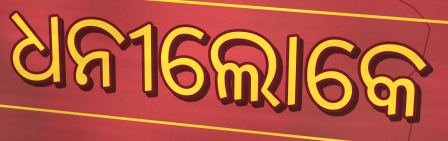
ଧନୀଲୋକେ